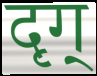
दृग्